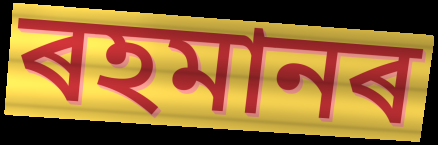
ৰহমানৰ